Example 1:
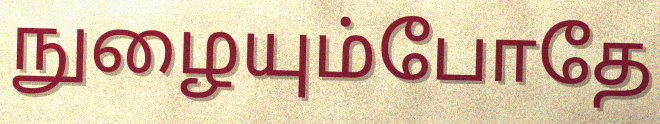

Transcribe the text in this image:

நுழையும்போதே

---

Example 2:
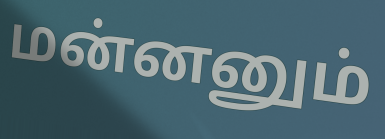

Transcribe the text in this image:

மன்னனும்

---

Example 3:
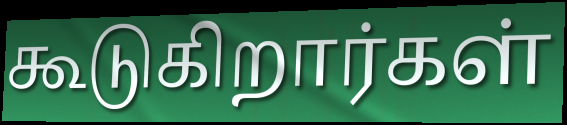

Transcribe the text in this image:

கூடுகிறார்கள்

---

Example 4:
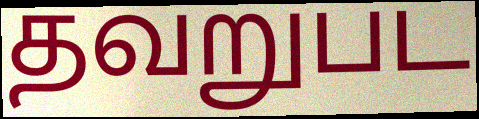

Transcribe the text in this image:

தவறுபட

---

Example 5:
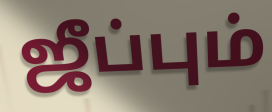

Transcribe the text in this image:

ஜீப்பும்